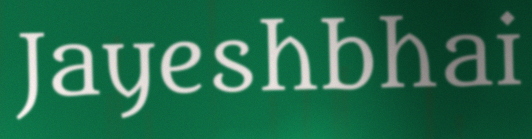
Jayeshbhai